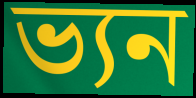
ভ্যন